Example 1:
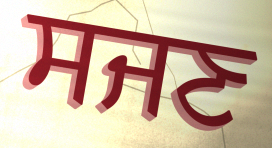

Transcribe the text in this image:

ਸਜਣ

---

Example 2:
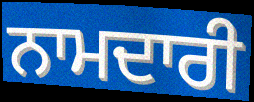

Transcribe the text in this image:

ਨਾਮਦਾਰੀ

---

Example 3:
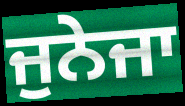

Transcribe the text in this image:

ਜੁਨੇਜਾ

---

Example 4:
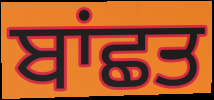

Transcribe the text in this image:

ਬਾਂਛਤ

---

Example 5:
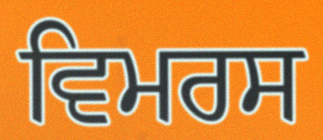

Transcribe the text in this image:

ਵਿਮਰਸ